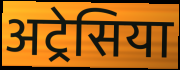
अट्रेसिया